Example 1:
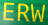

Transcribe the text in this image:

ERW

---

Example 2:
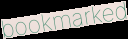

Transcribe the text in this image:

bookmarked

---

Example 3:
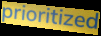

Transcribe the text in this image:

prioritized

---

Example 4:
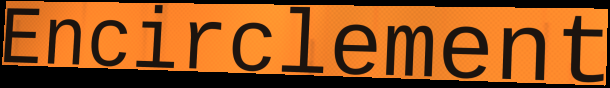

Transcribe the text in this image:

Encirclement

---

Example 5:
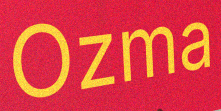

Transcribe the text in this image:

Ozma